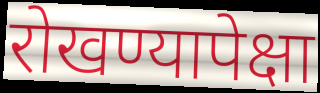
रोखण्यापेक्षा